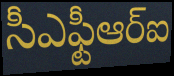
సీఎఫ్టీఆర్ఐ